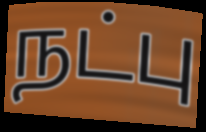
நட்பு